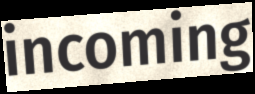
incoming